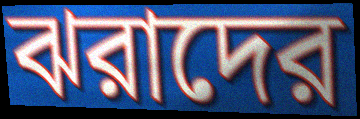
ঝরাদের